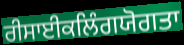
ਰੀਸਾਈਕਲਿੰਗਯੋਗਤਾ